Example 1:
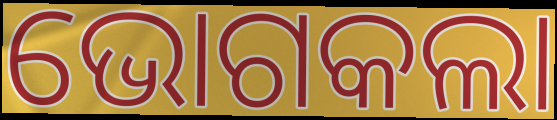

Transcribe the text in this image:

ଭୋଗକଲା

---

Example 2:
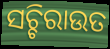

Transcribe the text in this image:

ସଚ୍ଚିରାଉତ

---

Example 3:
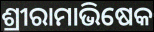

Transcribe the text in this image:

ଶ୍ରୀରାମାଭିଷେକ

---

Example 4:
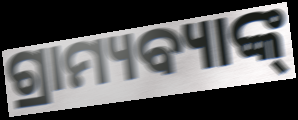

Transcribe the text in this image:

ଗ୍ରାମ୍ୟବ୍ୟାଙ୍କ୍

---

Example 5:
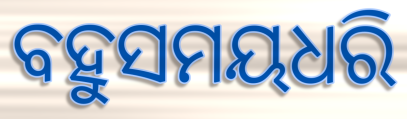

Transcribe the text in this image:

ବହୁସମୟଧରି